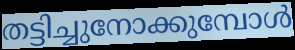
തട്ടിച്ചുനോക്കുമ്പോൾ